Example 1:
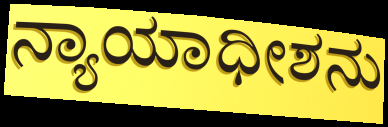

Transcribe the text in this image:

ನ್ಯಾಯಾಧೀಶನು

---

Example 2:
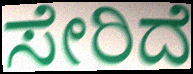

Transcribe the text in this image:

ಸೇರಿದೆ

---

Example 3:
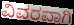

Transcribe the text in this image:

ವಿವರವಾಗಿ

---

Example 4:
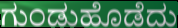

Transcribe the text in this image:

ಗುಂಡುಹೊಡೆದು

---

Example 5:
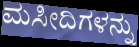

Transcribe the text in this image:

ಮಸೀದಿಗಳನ್ನು